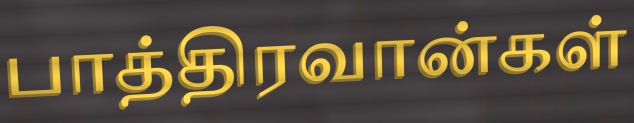
பாத்திரவான்கள்